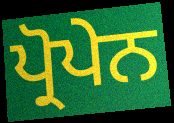
ਪ੍ਰੋਪੇਨ